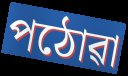
পঠোৱা